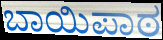
ಬಾಯಿಪಾಠ